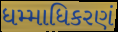
ધમ્માધિકરણં